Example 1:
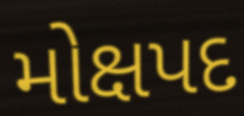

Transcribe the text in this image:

મોક્ષપદ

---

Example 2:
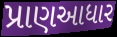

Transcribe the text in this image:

પ્રાણઆધાર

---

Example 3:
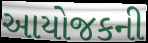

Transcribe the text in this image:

આયોજકની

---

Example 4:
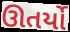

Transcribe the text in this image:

ઊતર્યો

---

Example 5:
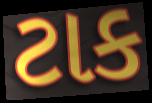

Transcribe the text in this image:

ટાક